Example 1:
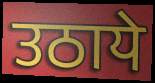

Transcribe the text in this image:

उठाये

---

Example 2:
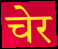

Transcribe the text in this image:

चेर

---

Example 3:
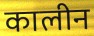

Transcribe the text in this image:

कालीन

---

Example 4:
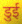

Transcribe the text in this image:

डुई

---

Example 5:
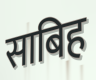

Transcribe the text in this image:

साबिह